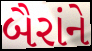
બૈરાંને